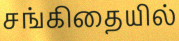
சங்கிதையில்